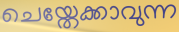
ചെയ്തേക്കാവുന്ന